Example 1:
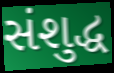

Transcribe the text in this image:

સંશુદ્ધ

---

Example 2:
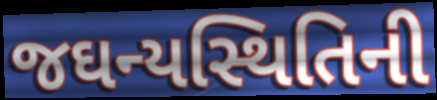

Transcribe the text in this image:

જઘન્યસ્થિતિની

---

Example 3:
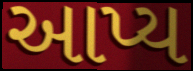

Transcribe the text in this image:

આપ્ય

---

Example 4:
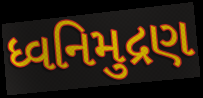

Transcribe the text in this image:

ધ્વનિમુદ્રણ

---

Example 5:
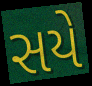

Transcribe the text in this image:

સયે